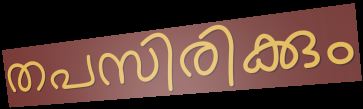
തപസിരിക്കും